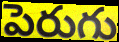
పెరుగు